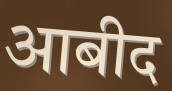
आबीद